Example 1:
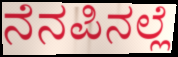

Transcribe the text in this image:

ನೆನಪಿನಲ್ಲೆ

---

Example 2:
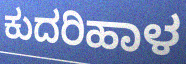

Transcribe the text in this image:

ಕುದರಿಹಾಳ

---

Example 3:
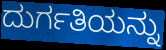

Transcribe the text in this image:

ದುರ್ಗತಿಯನ್ನು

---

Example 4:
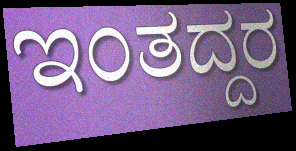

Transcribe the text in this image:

ಇಂತದ್ದರ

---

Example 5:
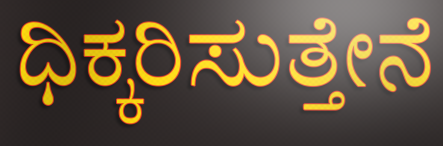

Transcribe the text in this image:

ಧಿಕ್ಕರಿಸುತ್ತೇನೆ